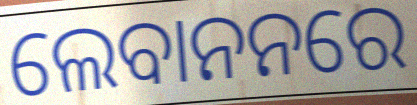
ଲେବାନନରେ